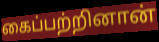
கைப்பற்றினான்